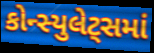
કોન્સ્યુલેટ્સમાં